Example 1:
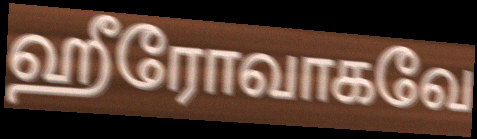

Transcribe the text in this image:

ஹீரோவாகவே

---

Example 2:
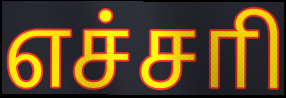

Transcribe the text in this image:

எச்சரி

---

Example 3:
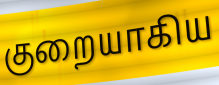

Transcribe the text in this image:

குறையாகிய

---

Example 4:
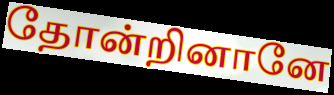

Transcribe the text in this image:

தோன்றினானே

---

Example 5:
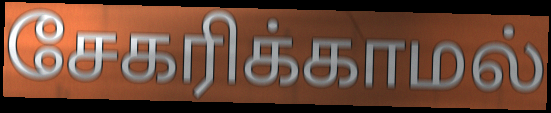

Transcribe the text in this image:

சேகரிக்காமல்